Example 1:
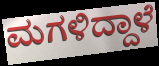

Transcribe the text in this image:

ಮಗಳಿದ್ದಾಳೆ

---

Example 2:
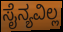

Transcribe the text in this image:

ಸೈನ್ಯವಿಲ್ಲ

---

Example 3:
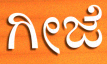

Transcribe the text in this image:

ಗೀಜೆ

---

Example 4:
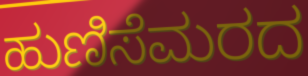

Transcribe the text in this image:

ಹುಣಿಸೆಮರದ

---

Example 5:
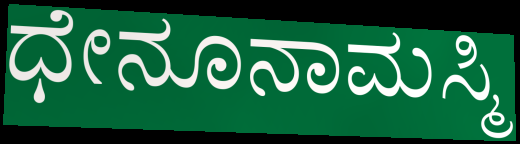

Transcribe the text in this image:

ಧೇನೂನಾಮಸ್ಮಿ